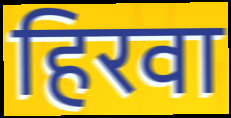
हिरवा